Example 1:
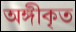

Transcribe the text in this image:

অঙ্গীকৃত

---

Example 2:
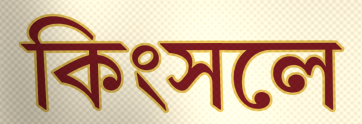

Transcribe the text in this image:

কিংসলে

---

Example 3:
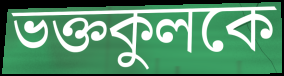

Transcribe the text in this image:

ভক্তকুলকে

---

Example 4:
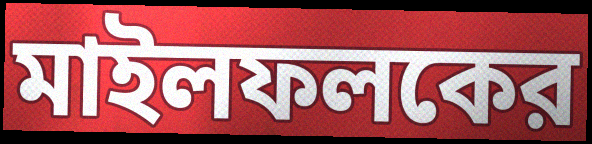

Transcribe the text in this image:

মাইলফলকের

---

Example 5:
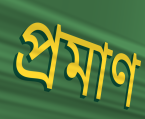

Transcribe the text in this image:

প্রমাণ